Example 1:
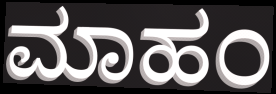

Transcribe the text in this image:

ಮಾಹಂ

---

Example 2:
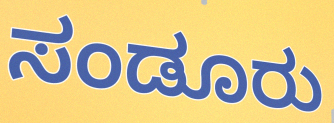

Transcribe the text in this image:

ಸಂಡೂರು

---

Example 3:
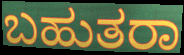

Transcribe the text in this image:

ಬಹುತರಾ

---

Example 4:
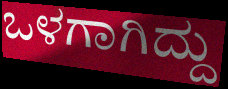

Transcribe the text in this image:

ಒಳಗಾಗಿದ್ದು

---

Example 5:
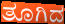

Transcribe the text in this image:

ತೂಗಿದ